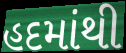
હદમાંથી